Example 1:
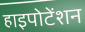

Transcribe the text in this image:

हाइपोटेंशन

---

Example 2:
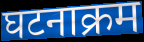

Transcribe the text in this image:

घटनाक्रम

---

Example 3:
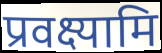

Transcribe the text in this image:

प्रवक्ष्यामि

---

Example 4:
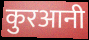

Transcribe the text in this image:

कुरआनी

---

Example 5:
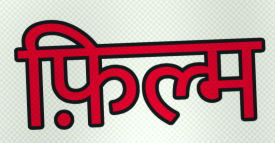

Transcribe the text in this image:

फ़िल्म